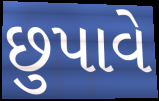
છુપાવે